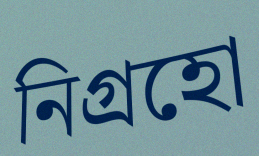
নিগ্রহো